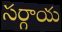
సర్గాయ